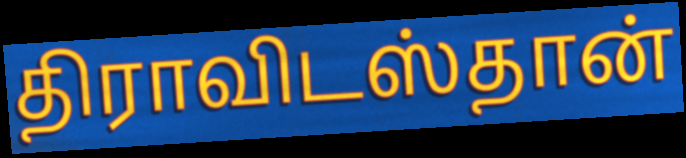
திராவிடஸ்தான்